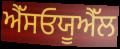
ਐੱਸਓਯੂਐੱਲ